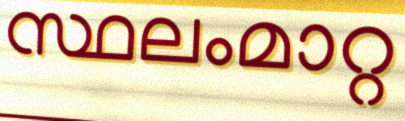
സ്ഥലംമാറ്റ